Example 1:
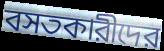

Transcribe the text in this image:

বসতকারীদের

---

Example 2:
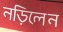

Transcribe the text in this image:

নড়িলেন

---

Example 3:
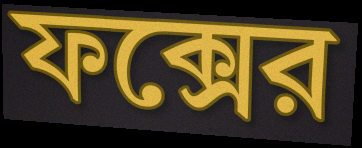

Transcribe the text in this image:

ফক্সের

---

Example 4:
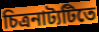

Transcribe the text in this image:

চিত্রনাট্যটিতে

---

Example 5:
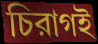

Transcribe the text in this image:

চিরাগই